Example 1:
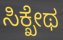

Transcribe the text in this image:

ಸಿಕ್ಖೇಥ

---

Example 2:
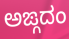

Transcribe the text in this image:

ಅಙ್ಗದಂ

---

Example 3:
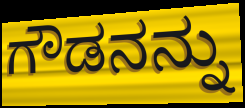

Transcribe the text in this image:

ಗೌಡನನ್ನು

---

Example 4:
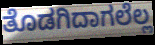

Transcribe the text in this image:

ತೊಡಗಿದಾಗಲೆಲ್ಲ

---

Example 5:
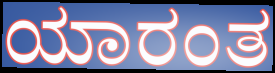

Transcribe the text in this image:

ಯಾರಂತ